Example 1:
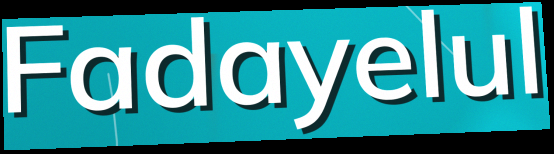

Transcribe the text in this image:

Fadayelul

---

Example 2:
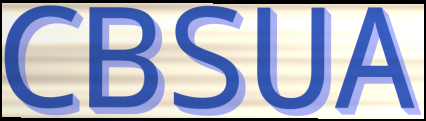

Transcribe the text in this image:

CBSUA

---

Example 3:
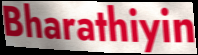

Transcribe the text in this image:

Bharathiyin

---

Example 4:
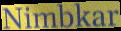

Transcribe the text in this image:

Nimbkar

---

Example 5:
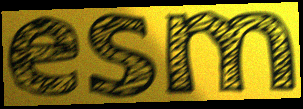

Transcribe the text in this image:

esm